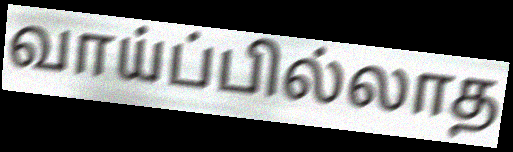
வாய்ப்பில்லாத